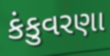
કંકુવરણા